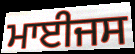
ਮਾਈਜਸ